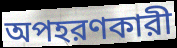
অপহরণকারী